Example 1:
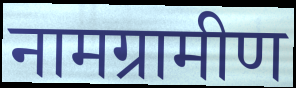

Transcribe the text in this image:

नामग्रामीण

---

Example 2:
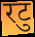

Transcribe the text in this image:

रटु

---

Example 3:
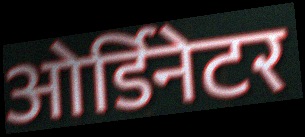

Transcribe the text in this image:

ओर्डिनेटर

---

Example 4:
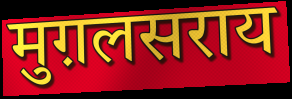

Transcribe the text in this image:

मुग़लसराय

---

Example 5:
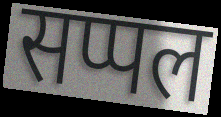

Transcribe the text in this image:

सप्पल